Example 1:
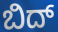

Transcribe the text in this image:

ಬಿದ್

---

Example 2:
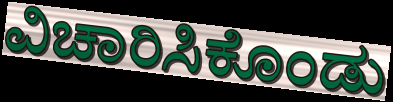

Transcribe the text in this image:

ವಿಚಾರಿಸಿಕೊಂಡು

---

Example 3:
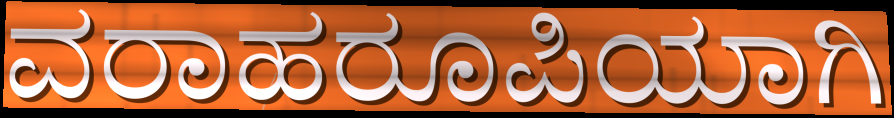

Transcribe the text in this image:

ವರಾಹರೂಪಿಯಾಗಿ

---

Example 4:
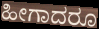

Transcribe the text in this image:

ಹೀಗಾದರೂ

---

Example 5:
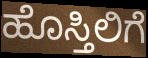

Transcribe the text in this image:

ಹೊಸ್ತಿಲಿಗೆ